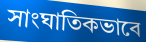
সাংঘাতিকভাবে